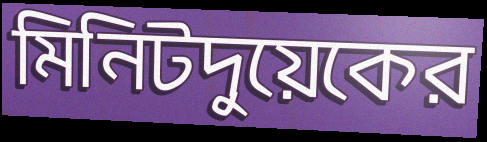
মিনিটদুয়েকের